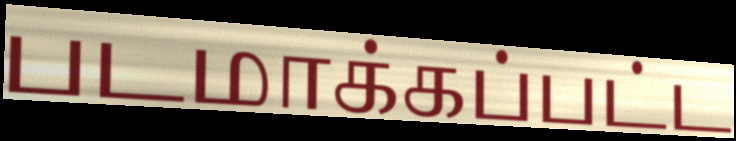
படமாக்கப்பட்ட